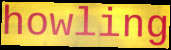
howling